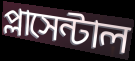
প্লাসেন্টাল